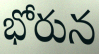
భోరున